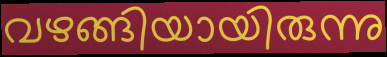
വഴങ്ങിയായിരുന്നു